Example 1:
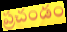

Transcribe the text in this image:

ప్రచండం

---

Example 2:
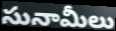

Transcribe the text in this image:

సునామీలు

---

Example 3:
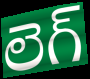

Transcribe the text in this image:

లెగ్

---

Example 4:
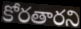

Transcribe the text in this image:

కోరతారని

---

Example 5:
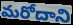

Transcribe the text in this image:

మరోదాని